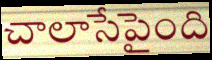
చాలాసేపైంది